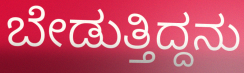
ಬೇಡುತ್ತಿದ್ದನು